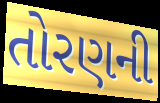
તોરણની